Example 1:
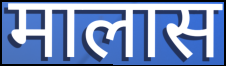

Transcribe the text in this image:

मालास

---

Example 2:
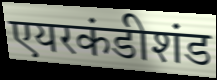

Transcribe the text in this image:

एयरकंडीशंड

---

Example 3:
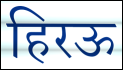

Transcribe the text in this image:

हिरऊ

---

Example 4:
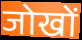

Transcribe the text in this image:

जोखों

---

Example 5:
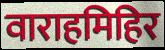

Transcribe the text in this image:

वाराहमिहिर